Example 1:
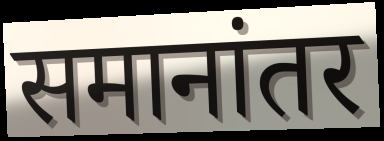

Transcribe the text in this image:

समानांतर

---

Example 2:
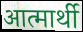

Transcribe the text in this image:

आत्मार्थी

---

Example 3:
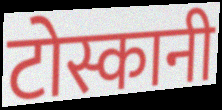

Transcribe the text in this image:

टोस्कानी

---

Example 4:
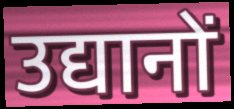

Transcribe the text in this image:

उद्यानों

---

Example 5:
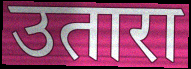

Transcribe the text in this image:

उतारा